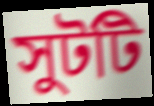
সুটটি